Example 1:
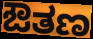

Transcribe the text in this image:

ಔತಣ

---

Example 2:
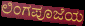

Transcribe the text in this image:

ಲಿಂಗಪೂಜೆಯ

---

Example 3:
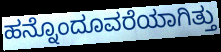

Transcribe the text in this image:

ಹನ್ನೊಂದೂವರೆಯಾಗಿತ್ತು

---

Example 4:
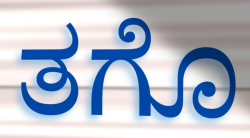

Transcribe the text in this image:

ತಗೊ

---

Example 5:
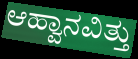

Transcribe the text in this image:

ಆಹ್ವಾನವಿತ್ತು